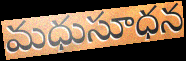
మధుసూధన